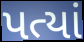
પત્યાં